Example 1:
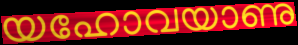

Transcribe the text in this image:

യഹോവയാണു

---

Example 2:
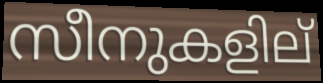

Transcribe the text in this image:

സീനുകളില്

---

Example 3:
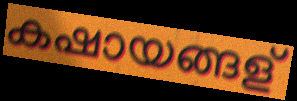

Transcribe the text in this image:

കഷായങ്ങള്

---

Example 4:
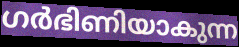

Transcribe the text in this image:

ഗർഭിണിയാകുന്ന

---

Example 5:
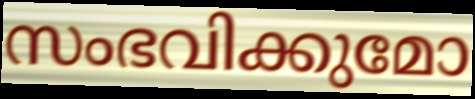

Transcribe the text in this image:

സംഭവിക്കുമോ